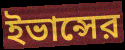
ইভান্সের